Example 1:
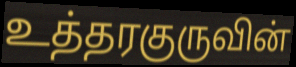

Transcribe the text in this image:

உத்தரகுருவின்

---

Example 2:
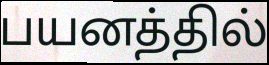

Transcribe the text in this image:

பயனத்தில்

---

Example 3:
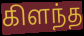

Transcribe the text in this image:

கிளந்த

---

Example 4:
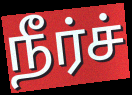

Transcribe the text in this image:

நீர்ச்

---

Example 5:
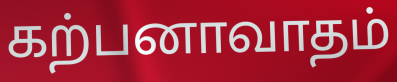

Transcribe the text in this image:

கற்பனாவாதம்